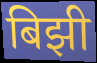
बिझी